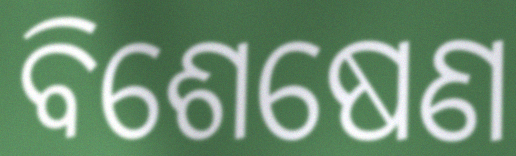
ବିଶେଷେଣ